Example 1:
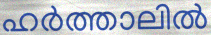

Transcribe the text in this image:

ഹർത്താലിൽ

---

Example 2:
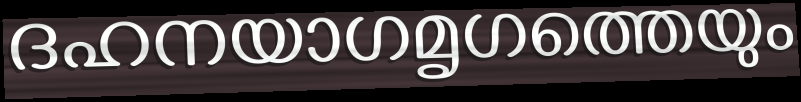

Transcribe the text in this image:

ദഹനയാഗമൃഗത്തെയും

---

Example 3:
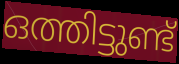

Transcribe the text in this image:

ഒത്തിട്ടുണ്ട്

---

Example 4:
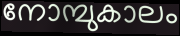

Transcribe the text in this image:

നോമ്പുകാലം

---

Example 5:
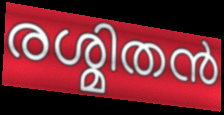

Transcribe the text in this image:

രശ്മിതൻ